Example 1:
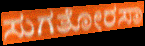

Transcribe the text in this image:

ಸುಗತೋರಸಾ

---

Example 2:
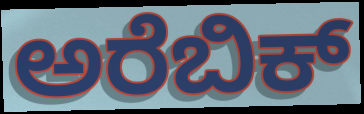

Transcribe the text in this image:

ಅರೆಬಿಕ್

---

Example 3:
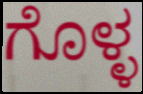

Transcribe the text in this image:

ಗೊಳ್ಳ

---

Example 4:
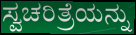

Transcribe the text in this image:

ಸ್ವಚರಿತ್ರೆಯನ್ನು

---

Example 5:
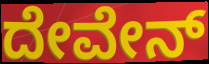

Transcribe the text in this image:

ದೇವೇನ್